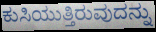
ಕುಸಿಯುತ್ತಿರುವುದನ್ನು